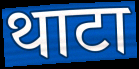
थाटा